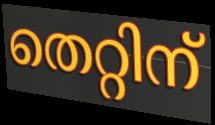
തെറ്റിന്